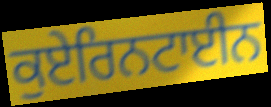
ਕੁਏਰਿਨਟਾਈਨ